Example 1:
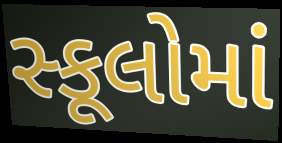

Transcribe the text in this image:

સ્કૂલોમાં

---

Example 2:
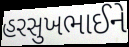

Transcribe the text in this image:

હરસુખભાઈને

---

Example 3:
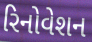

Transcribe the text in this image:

રિનોવેશન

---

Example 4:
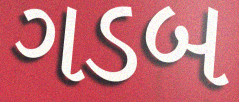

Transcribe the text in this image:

ગડબ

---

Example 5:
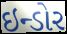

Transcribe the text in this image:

ઇન્ડોર